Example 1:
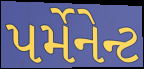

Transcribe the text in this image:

પર્મેનેન્ટ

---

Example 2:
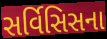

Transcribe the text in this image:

સર્વિસિસના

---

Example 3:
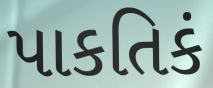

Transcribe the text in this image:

પાકતિકં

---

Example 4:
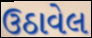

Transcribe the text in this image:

ઉઠાવેલ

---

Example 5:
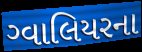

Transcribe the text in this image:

ગ્વાલિયરના